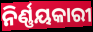
ନିର୍ଣ୍ଣୟକାରୀ